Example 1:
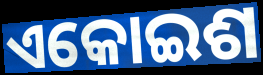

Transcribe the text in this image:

ଏକୋଇଶ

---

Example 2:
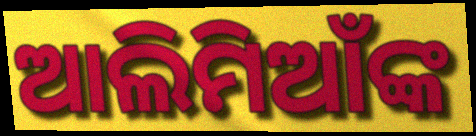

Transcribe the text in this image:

ଆଲିମିଆଁଙ୍କ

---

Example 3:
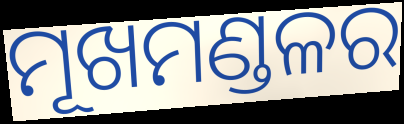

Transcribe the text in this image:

ମୂଖମଣ୍ଡଳର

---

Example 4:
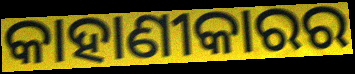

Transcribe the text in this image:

କାହାଣୀକାରର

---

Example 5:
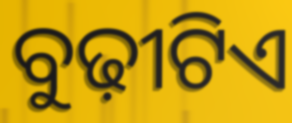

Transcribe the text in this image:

ବୁଢ଼ୀଟିଏ